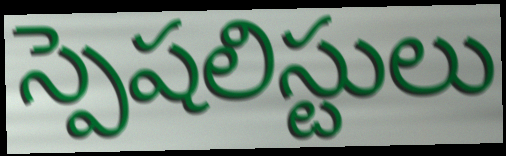
స్పెషలిస్టులు